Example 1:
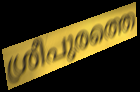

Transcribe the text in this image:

ശ്രീപുരത്തെ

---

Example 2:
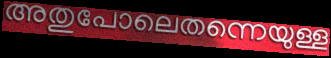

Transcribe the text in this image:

അതുപോലെതന്നെയുള്ള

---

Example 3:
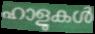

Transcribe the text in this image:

ഹാളുകൾ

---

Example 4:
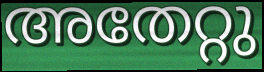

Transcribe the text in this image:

അതേറ്റു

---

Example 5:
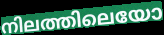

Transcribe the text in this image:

നിലത്തിലെയോ